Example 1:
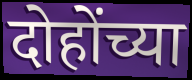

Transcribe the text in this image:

दोहोंच्या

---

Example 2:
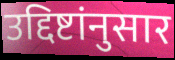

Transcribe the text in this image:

उद्दिष्टांनुसार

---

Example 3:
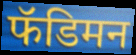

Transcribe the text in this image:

फॅडिमन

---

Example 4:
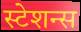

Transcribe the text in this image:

स्टेशन्स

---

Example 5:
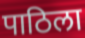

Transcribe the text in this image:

पाठिला